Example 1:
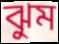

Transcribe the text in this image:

ঝুম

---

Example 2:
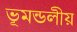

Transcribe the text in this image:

ভূমন্ডলীয়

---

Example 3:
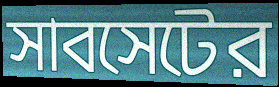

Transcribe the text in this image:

সাবসেটের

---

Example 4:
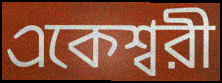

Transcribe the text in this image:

একেশ্বরী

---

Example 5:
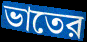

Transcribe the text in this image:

ভাতের